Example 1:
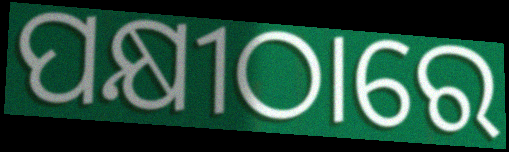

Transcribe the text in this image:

ପକ୍ଷୀଠାରେ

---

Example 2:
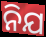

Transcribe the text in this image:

ନିଯ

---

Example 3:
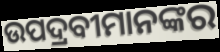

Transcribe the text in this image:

ଉପଦ୍ରବୀମାନଙ୍କର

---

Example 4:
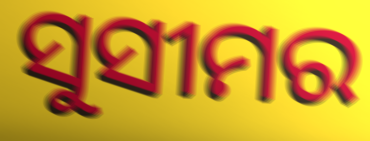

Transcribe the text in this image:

ସୁସୀମର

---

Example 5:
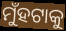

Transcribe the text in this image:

ମୁଁହଟାକୁ